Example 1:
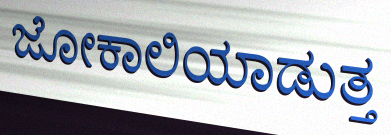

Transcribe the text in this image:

ಜೋಕಾಲಿಯಾಡುತ್ತ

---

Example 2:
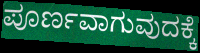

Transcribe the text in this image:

ಪೂರ್ಣವಾಗುವುದಕ್ಕೆ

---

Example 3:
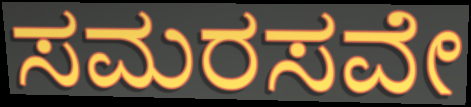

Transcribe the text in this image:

ಸಮರಸವೇ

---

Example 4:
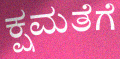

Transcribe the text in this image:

ಕ್ಷಮತೆಗೆ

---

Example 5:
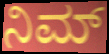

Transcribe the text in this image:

ನಿಮ್